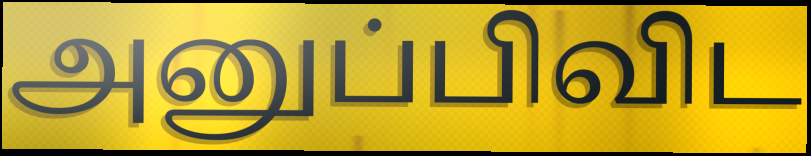
அனுப்பிவிட